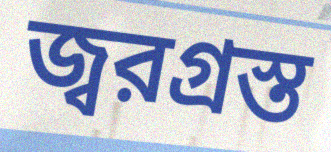
জ্বরগ্রস্ত